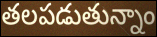
తలపడుతున్నాం